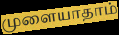
முளையாதாம்